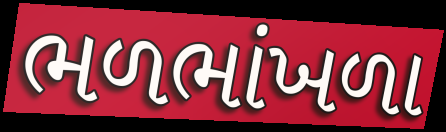
ભળભાંખળા